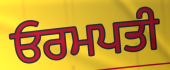
ਓਰਮਪਤੀ